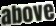
above